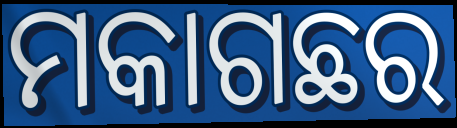
ମକାଗଛର